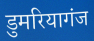
डुमरियागंज